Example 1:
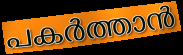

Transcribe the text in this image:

പകർത്താൻ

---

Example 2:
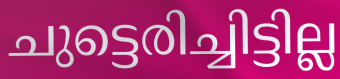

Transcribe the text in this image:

ചുട്ടെരിച്ചിട്ടില്ല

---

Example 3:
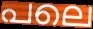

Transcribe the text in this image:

പലെ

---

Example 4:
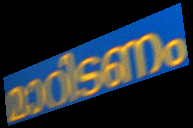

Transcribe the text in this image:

മാറിടണം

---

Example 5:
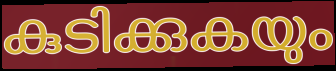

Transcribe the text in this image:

കുടിക്കുകയും